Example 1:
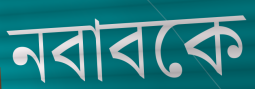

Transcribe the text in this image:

নবাবকে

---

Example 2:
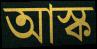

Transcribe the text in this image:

আস্ক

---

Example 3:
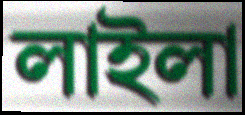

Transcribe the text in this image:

লাইলা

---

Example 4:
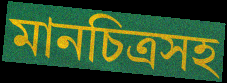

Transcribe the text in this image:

মানচিত্রসহ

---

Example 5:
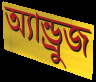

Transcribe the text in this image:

অ্যান্ড্রুজ